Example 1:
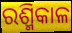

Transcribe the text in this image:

ରଶ୍ମିକାଳ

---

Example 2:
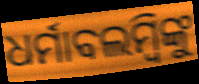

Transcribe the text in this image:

ଧର୍ମାବଲମ୍ବିଙ୍କୁ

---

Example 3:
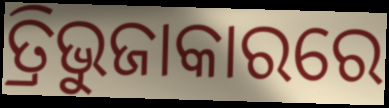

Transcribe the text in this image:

ତ୍ରିଭୁଜାକାରରେ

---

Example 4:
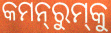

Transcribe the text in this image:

କମନ୍‍ରୁମ୍‍କୁ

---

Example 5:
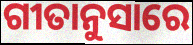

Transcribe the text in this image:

ଗୀତାନୁସାରେ